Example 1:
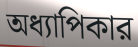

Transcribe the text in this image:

অধ্যাপিকার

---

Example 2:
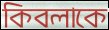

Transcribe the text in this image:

কিবলাকে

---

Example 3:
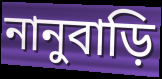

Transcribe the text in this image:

নানুবাড়ি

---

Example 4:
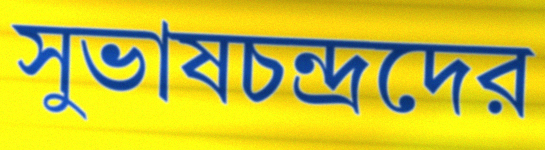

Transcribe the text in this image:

সুভাষচন্দ্রদের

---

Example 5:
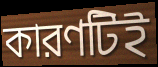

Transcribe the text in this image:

কারণটিই